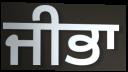
ਜੀਭਾ